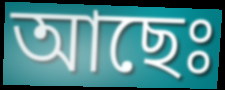
আছেঃ